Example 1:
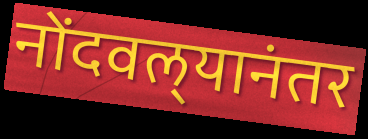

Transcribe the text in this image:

नोंदवल्यानंतर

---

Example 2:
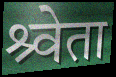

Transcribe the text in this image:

श्र्वेता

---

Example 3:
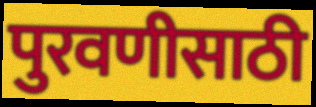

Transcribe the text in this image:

पुरवणीसाठी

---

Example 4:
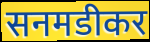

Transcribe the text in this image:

सनमडीकर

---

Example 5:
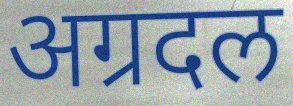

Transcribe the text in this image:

अग्रदल